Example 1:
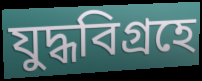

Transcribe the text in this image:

যুদ্ধবিগ্রহে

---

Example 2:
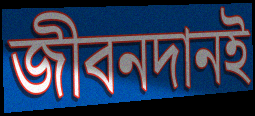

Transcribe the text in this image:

জীবনদানই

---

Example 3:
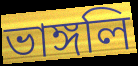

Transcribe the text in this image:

ভাঙ্গলি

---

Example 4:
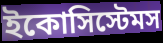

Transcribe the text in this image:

ইকোসিস্টেমস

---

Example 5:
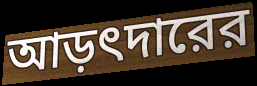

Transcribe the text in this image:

আড়ৎদারের